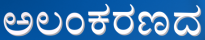
ಅಲಂಕರಣದ